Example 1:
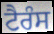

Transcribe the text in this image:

ਟੈਰੰਸ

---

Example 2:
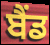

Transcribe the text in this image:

ਬੈਂਡ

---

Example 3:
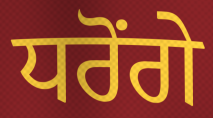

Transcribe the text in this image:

ਧਰੋਂਗੇ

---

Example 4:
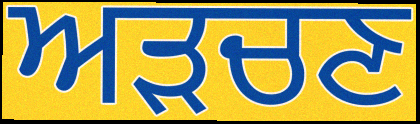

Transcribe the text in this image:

ਅੜਚਣ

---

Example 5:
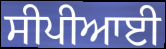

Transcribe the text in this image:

ਸੀਪੀਆਈ